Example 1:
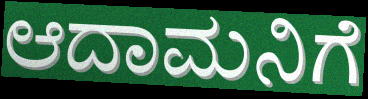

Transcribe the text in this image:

ಆದಾಮನಿಗೆ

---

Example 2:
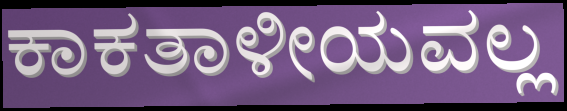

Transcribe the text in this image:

ಕಾಕತಾಳೀಯವಲ್ಲ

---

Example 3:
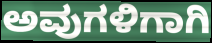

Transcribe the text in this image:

ಅವುಗಳಿಗಾಗಿ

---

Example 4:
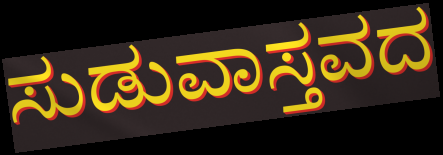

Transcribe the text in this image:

ಸುಡುವಾಸ್ತವದ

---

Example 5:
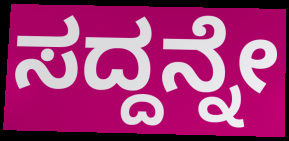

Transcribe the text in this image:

ಸದ್ದನ್ನೇ